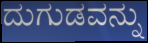
ದುಗುಡವನ್ನು